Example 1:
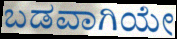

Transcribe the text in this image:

ಬಡವಾಗಿಯೇ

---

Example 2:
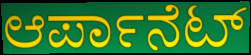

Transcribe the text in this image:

ಆರ್ಪಾನೆಟ್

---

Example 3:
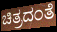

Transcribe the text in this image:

ಚಿತ್ರದಂತೆ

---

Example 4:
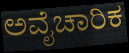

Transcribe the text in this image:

ಅವೈಚಾರಿಕ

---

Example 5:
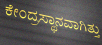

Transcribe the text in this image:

ಕೇಂದ್ರಸ್ಥಾನವಾಗಿತ್ತು